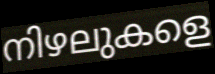
നിഴലുകളെ